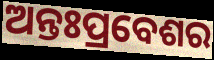
ଅନ୍ତଃପ୍ରବେଶର